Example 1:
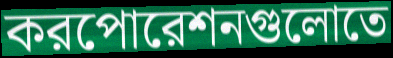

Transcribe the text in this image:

করপোরেশনগুলোতে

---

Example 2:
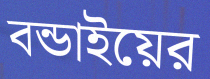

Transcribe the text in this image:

বন্ডাইয়ের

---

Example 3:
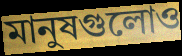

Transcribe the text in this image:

মানুষগুলোও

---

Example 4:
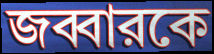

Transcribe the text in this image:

জব্বারকে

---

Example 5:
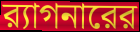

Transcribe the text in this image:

র‍্যাগনারের